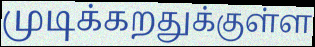
முடிக்கறதுக்குள்ள